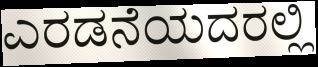
ಎರಡನೆಯದರಲ್ಲಿ